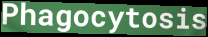
Phagocytosis